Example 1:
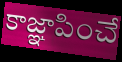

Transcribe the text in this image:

కాజ్ఞాపించే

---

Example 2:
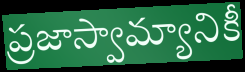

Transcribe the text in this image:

ప్రజాస్వామ్యానికీ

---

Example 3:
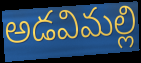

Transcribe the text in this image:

అడవిమల్లి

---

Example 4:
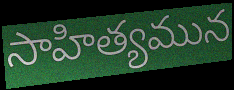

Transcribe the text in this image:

సాహిత్యమున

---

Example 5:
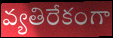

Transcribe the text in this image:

వ్యతిరేకంగా